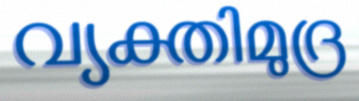
വ്യക്തിമുദ്ര